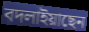
বদলাইয়াছেন